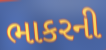
ભાકરની